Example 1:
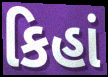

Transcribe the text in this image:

કિહાં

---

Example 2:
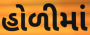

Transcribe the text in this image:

હોળીમાં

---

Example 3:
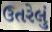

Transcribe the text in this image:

ઉતરેલું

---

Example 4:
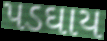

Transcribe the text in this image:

પડઘાય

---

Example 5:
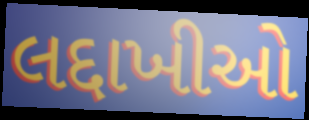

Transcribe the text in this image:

લદ્દાખીઓ